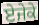
ਏਜੇਕੇ